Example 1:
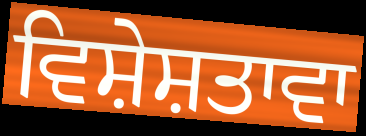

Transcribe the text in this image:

ਵਿਸ਼ੇਸ਼ਤਾਵਾ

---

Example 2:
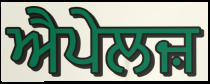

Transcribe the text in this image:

ਐਪੇਲਜ਼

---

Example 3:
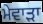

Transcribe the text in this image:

ਮੇਵਾੜਾ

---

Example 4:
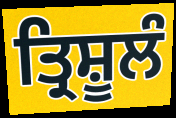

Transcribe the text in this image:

ਤ੍ਰਿਸ਼ੂਲੰ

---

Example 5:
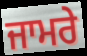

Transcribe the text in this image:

ਜਾਮਰੇ